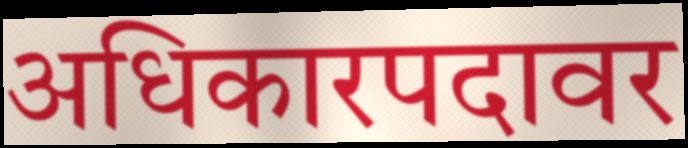
अधिकारपदावर